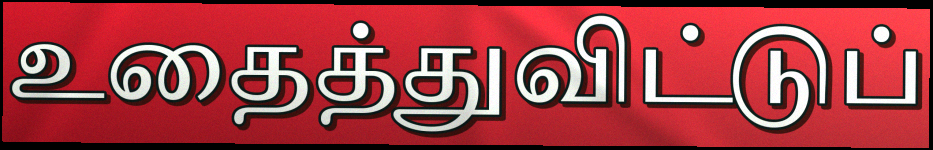
உதைத்துவிட்டுப்